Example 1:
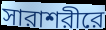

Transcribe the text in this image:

সারাশরীরে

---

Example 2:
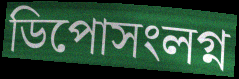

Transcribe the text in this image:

ডিপোসংলগ্ন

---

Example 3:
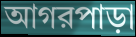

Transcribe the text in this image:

আগরপাড়া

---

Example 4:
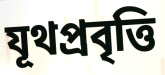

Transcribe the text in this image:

যূথপ্রবৃত্তি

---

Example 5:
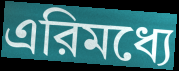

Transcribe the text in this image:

এরিমধ্যে